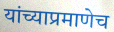
यांच्याप्रमाणेच